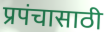
प्रपंचासाठी